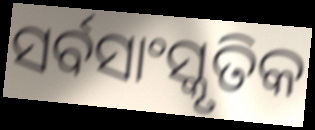
ସର୍ବସାଂସ୍କୃତିକ